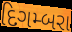
દિગમ્બરા